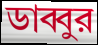
ডাব্বুর